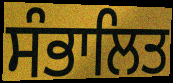
ਸੰਭਾਲਿਤ